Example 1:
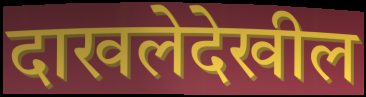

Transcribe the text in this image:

दाखलेदेखील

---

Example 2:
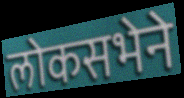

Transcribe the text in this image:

लोकसभेने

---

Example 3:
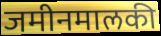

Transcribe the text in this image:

जमीनमालकी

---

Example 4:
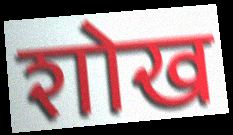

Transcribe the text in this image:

शोख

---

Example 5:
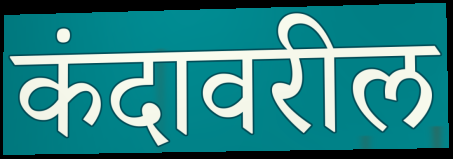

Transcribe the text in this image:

कंदावरील